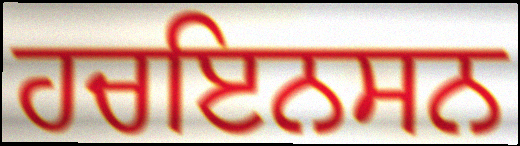
ਹਚਇਨਸਨ